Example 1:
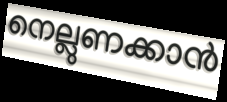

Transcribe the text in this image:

നെല്ലുണക്കാൻ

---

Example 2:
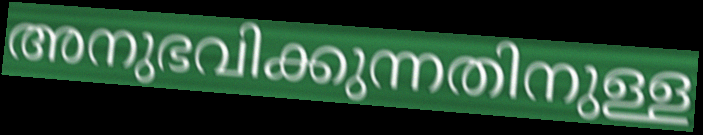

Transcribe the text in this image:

അനുഭവിക്കുന്നതിനുള്ള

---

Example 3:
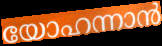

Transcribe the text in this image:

യോഹന്നാൻ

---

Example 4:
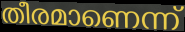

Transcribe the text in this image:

തീരമാണെന്ന്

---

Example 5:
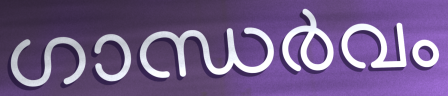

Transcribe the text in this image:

ഗാന്ധർവം